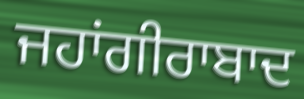
ਜਹਾਂਗੀਰਾਬਾਦ